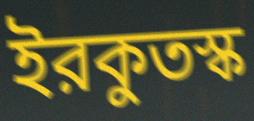
ইরকুতস্ক